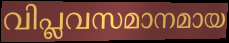
വിപ്ലവസമാനമായ